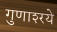
गुणाश्रये